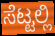
ಸೆಟ್ಟಲ್ಲಿ